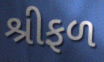
શ્રીફળ